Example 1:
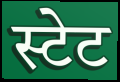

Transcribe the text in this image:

स्टेट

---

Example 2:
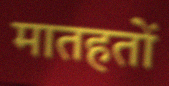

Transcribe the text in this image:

मातहतों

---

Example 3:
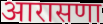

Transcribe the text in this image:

आरासणा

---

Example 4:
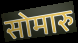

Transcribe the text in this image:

सोमारु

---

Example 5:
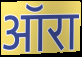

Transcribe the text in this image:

ऑरा